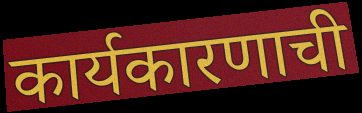
कार्यकारणाची